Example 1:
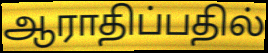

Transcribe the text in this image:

ஆராதிப்பதில்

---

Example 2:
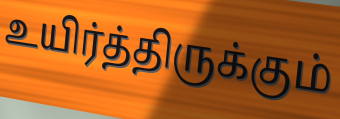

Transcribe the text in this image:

உயிர்த்திருக்கும்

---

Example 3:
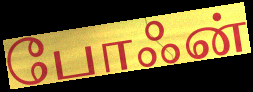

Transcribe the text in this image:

போஃன்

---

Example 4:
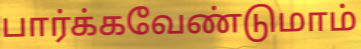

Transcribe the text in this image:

பார்க்கவேண்டுமாம்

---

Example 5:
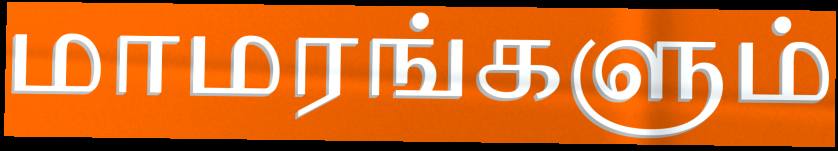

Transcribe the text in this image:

மாமரங்களும்